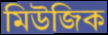
মিউজিক